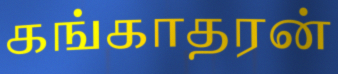
கங்காதரன்